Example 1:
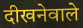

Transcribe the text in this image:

दीखनेवाले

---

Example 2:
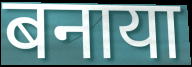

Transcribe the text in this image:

बनाया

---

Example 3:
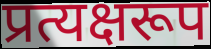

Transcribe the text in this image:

प्रत्यक्षरूप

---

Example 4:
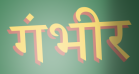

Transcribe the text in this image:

गंभीर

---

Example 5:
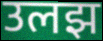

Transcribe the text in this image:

उलझ